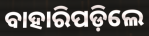
ବାହାରିପଡ଼ିଲେ